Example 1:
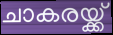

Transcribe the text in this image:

ചാകരയ്ക്ക്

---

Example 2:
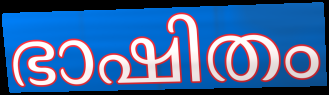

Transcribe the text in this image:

ഭാഷിതം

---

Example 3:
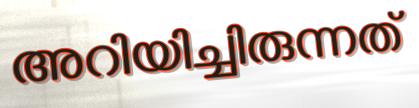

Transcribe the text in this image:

അറിയിച്ചിരുന്നത്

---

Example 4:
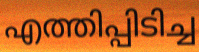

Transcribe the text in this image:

എത്തിപ്പിടിച്ച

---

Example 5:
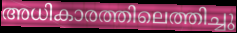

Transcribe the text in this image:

അധികാരത്തിലെത്തിച്ചു